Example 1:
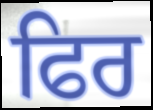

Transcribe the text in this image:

ਫਿਰ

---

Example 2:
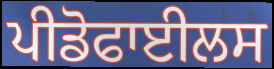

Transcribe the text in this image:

ਪੀਡੋਫਾਈਲਸ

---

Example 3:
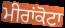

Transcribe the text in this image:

ਮੀਰਾਂਕੋਟਾ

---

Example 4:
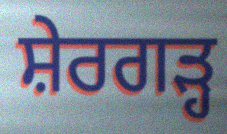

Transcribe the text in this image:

ਸ਼ੇਰਗੜ੍ਹ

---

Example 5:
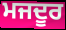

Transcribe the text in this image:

ਮਜਦੂਰ